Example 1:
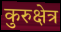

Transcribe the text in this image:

कुरुक्षेत्र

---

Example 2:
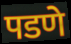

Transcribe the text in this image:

पडणे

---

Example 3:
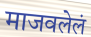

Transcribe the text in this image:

माजवलेलं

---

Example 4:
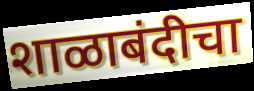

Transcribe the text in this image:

शाळाबंदीचा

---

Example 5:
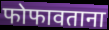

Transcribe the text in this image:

फोफावताना